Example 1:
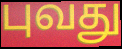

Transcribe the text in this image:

புவது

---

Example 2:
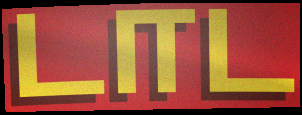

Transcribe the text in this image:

டாட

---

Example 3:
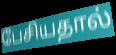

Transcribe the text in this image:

பேசியதால்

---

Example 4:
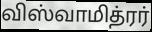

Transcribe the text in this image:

விஸ்வாமித்ரர்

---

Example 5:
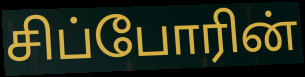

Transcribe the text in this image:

சிப்போரின்